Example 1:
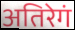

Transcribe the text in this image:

अतिरेगं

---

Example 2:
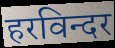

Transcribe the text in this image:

हरविन्दर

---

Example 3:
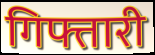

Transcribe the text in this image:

गिफ्तारी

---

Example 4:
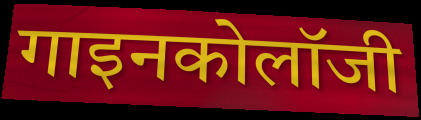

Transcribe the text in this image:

गाइनकोलॉजी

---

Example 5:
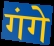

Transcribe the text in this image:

गंगे